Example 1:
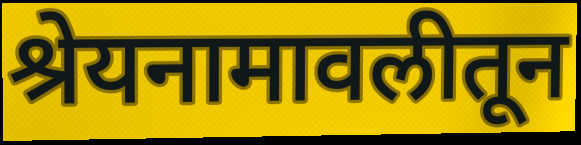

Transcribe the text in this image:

श्रेयनामावलीतून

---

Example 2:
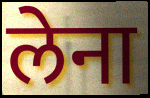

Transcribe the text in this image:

लेना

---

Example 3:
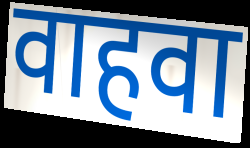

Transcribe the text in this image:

वाहवा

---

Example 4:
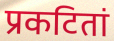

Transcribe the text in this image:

प्रकटितां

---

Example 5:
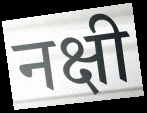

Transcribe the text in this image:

नक्षी